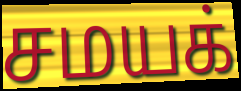
சமயக்